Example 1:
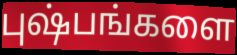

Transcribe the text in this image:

புஷ்பங்களை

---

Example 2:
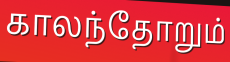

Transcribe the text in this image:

காலந்தோறும்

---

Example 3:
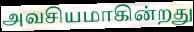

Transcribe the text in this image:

அவசியமாகின்றது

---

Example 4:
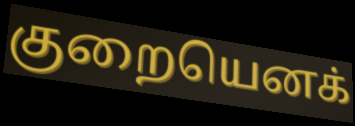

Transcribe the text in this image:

குறையெனக்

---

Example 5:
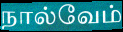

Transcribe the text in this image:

நால்வேம்